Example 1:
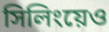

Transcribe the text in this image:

সিলিংয়েও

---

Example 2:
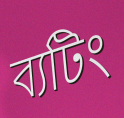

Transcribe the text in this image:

ব্যটিং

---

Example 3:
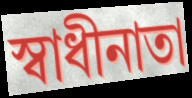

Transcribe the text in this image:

স্বাধীনাতা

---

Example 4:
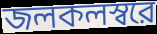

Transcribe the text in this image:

জলকলস্বরে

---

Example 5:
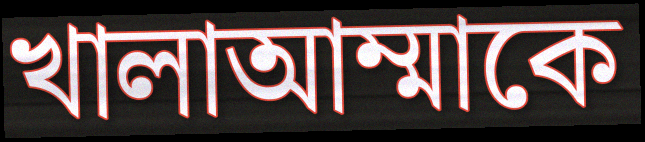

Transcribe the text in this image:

খালাআম্মাকে